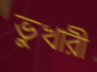
ভুখারী